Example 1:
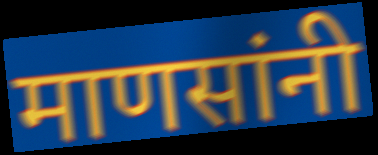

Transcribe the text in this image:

माणसांनी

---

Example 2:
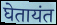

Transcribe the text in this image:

घेतायंत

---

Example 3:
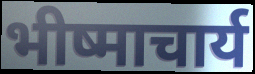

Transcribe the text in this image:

भीष्माचार्य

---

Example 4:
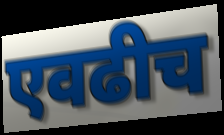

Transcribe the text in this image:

एवढीच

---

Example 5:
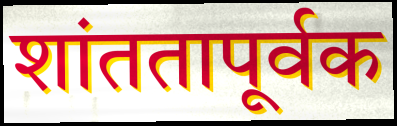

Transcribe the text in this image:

शांततापूर्वक